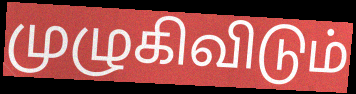
முழுகிவிடும்